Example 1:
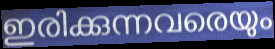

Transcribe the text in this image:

ഇരിക്കുന്നവരെയും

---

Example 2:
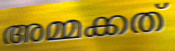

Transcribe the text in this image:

അമ്മക്കത്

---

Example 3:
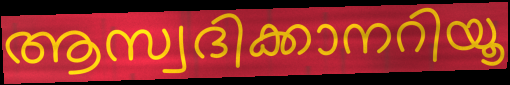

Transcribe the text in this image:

ആസ്വദിക്കാനറിയൂ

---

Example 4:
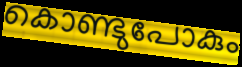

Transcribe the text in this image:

കൊണ്ടുപോകും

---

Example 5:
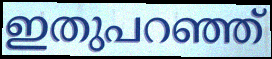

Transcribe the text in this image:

ഇതുപറഞ്ഞ്